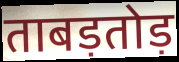
ताबड़तोड़